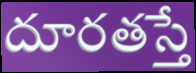
దూరతస్తే